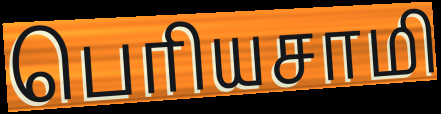
பெரியசாமி